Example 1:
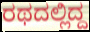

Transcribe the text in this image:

ರಥದಲ್ಲಿದ್ದ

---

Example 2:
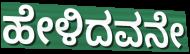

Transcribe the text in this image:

ಹೇಳಿದವನೇ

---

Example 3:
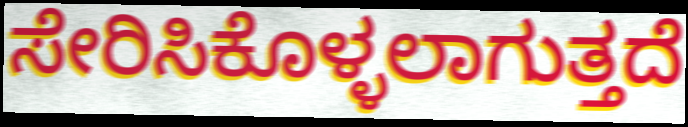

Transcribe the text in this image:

ಸೇರಿಸಿಕೊಳ್ಳಲಾಗುತ್ತದೆ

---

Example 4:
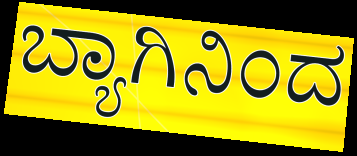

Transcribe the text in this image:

ಬ್ಯಾಗಿನಿಂದ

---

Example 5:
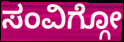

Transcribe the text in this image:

ಸಂವಿಗ್ಗೋ